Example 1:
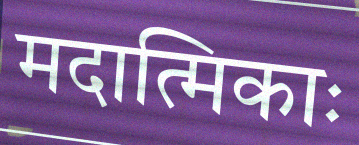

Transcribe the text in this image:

मदात्मिकाः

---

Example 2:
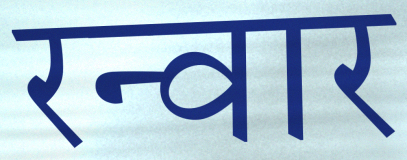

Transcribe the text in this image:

रन्वार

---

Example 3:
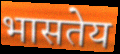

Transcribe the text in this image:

भासतेय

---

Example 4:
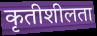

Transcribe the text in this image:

कृतीशीलता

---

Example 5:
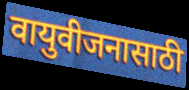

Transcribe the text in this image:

वायुवीजनासाठी